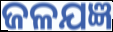
ଜଳଯଜ୍ଞ